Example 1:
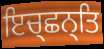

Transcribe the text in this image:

ਇਚ੍ਛਨ੍ਤਿ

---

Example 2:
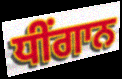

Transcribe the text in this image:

ਧੀਂਗਾਨ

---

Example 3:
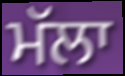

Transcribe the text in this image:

ਮੱਲਾ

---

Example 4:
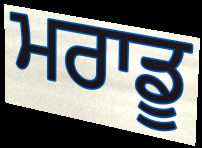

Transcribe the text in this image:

ਮਰਾਡੂ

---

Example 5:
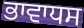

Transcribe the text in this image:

ਭਾਵਾਧਸ